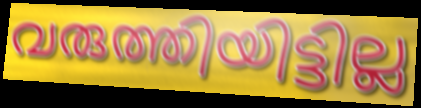
വരുത്തിയിട്ടില്ല